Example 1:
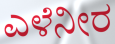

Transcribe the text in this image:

ಎಳೆನೀರ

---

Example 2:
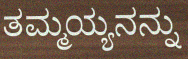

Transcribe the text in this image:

ತಮ್ಮಯ್ಯನನ್ನು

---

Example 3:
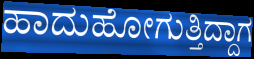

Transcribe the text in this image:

ಹಾದುಹೋಗುತ್ತಿದ್ದಾಗ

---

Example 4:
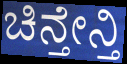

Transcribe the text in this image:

ಚಿನ್ತೇನ್ತಿ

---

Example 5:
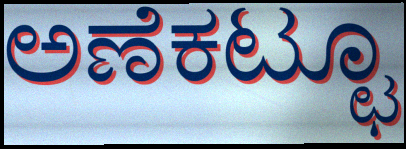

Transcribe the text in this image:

ಅಣೆಕಟ್ಟೂ